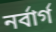
নর্বার্গ